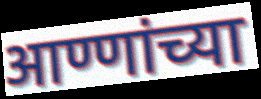
आण्णांच्या